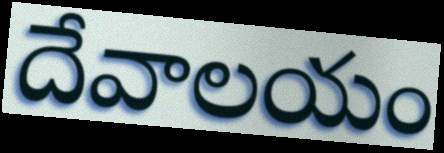
దేవాలయం